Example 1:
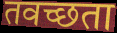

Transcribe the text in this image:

तवच्छता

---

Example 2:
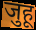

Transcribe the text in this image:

जुहू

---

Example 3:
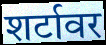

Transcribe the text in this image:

शर्टावर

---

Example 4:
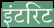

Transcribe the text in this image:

इंटरिट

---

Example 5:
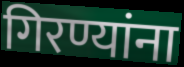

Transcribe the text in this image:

गिरण्यांना